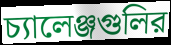
চ্যালেঞ্জগুলির